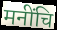
मनींचि